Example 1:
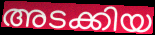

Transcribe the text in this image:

അടക്കിയ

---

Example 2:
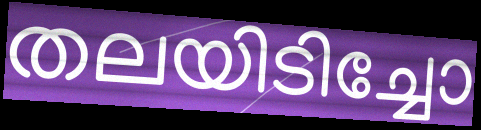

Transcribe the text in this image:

തലയിടിച്ചോ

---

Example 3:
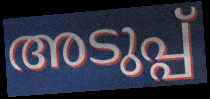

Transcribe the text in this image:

അടുപ്പ്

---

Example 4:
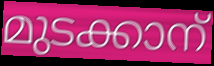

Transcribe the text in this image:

മുടക്കാന്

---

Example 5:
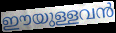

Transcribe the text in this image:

ഈയുള്ളവൻ